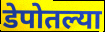
डेपोतल्या